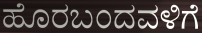
ಹೊರಬಂದವಳಿಗೆ